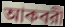
আকবরী